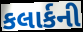
કલાર્કની